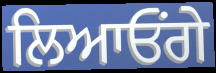
ਲਿਆਓਂਗੇ